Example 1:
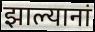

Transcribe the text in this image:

झाल्यानां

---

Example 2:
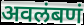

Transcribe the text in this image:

अवलंबणं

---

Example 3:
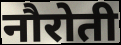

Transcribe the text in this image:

नौरोती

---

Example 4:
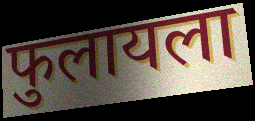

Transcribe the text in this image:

फुलायला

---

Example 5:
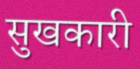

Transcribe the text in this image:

सुखकारी